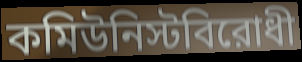
কমিউনিস্টবিরোধী